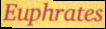
Euphrates